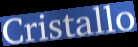
Cristallo